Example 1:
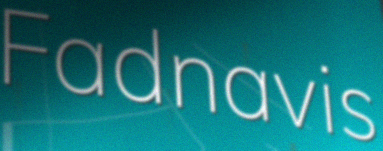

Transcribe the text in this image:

Fadnavis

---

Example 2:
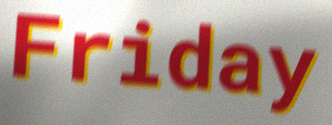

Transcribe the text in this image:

Friday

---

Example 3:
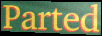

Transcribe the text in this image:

Parted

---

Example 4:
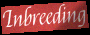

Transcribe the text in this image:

Inbreeding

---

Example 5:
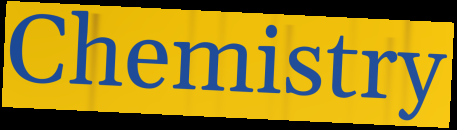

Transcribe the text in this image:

Chemistry